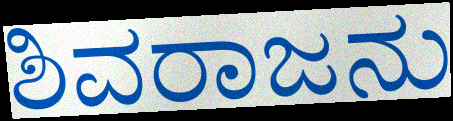
ಶಿವರಾಜನು